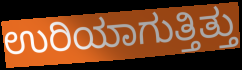
ಉರಿಯಾಗುತ್ತಿತ್ತು